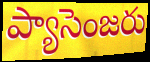
ప్యాసెంజరు